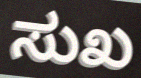
ಸುಖ